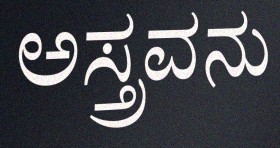
ಅಸ್ತ್ರವನು